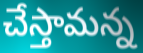
చేస్తామన్న